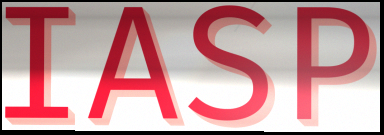
IASP